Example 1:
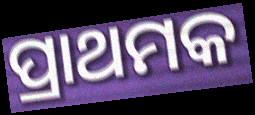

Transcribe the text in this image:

ପ୍ରାଥମକ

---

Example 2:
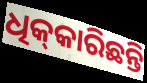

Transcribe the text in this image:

ଧିକ୍‌କାରିଛନ୍ତି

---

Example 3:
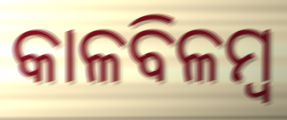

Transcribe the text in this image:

କାଳବିଳମ୍ବ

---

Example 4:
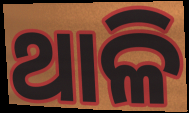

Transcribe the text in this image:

ଥାଳି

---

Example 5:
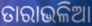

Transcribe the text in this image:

ତାରାଭଳିଆ